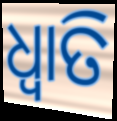
ଧ୍ବାତି